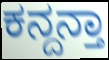
ಕನ್ದನ್ತಾ